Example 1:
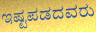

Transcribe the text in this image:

ಇಷ್ಟಪಡದವರು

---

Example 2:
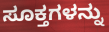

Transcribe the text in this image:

ಸೂಕ್ತಗಳನ್ನು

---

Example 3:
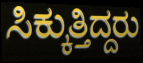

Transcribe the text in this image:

ಸಿಕ್ಕುತ್ತಿದ್ದರು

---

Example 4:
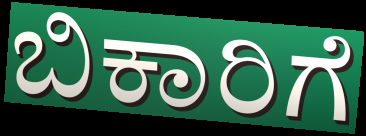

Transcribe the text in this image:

ಬಿಕಾರಿಗೆ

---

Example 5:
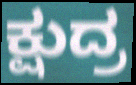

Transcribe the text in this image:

ಕ್ಷುದ್ರ